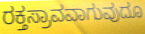
ರಕ್ತಸ್ರಾವವಾಗುವುದೂ